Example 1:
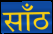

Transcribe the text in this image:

साँठ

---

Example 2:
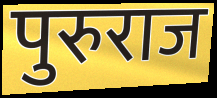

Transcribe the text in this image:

पुरुराज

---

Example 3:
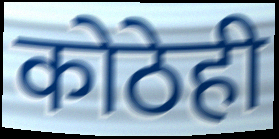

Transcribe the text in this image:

कोठेही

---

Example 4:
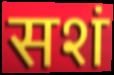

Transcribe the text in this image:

सशं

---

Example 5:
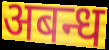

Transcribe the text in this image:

अबन्ध